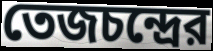
তেজচন্দ্রের